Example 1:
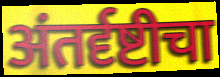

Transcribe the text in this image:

अंतर्दृष्टीचा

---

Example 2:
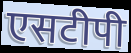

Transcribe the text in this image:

एसटीपी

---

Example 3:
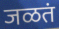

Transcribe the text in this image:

जळतं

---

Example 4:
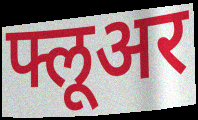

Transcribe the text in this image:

फ्लूअर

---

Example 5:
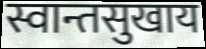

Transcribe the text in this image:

स्वान्तसुखाय